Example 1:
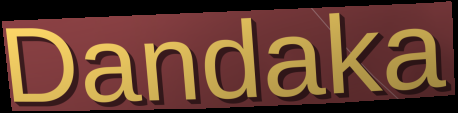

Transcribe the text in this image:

Dandaka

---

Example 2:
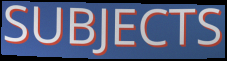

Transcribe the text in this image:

SUBJECTS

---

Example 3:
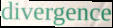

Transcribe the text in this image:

divergence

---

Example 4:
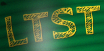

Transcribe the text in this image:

LTST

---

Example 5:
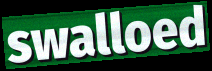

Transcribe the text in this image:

swalloed